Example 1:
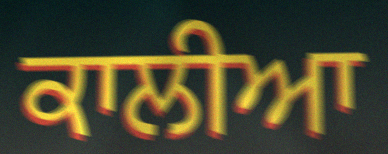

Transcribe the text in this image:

ਕਾਲੀਆ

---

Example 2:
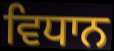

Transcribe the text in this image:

ਵਿਧਾਨ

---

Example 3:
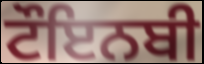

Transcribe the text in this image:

ਟੌਇਨਬੀ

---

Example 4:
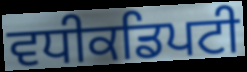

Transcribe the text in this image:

ਵਧੀਕਡਿਪਟੀ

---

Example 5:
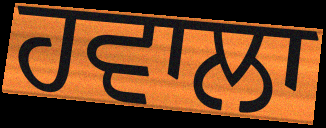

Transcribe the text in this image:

ਹਵਾਲਾ